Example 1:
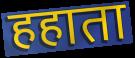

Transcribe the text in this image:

हहाता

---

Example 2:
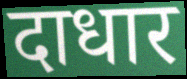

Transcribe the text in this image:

दाधार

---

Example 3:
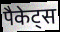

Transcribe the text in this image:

पैकेट्स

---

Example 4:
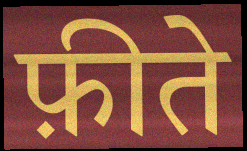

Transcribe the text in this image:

फ़ीते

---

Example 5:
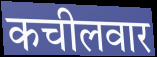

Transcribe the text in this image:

कचीलवार